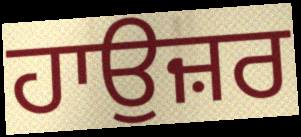
ਹਾਉਜ਼ਰ